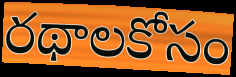
రథాలకోసం